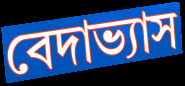
বেদাভ্যাস